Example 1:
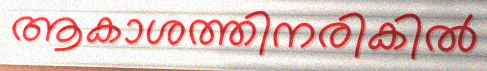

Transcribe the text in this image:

ആകാശത്തിനരികിൽ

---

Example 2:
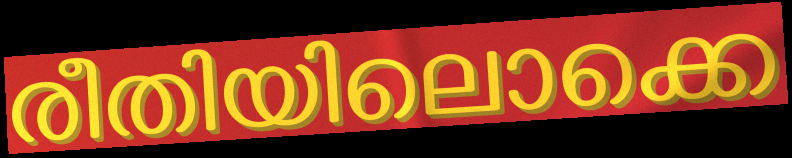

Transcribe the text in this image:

രീതിയിലൊക്കെ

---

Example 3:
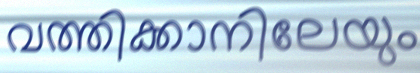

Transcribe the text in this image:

വത്തിക്കാനിലേയും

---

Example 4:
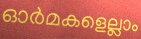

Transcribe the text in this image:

ഓർമകളെല്ലാം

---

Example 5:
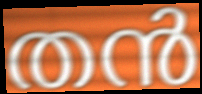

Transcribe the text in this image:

തൻ